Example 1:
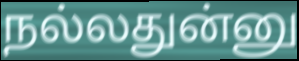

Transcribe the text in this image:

நல்லதுன்னு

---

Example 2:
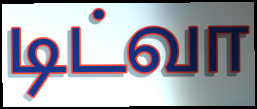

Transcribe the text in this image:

டிட்வா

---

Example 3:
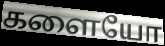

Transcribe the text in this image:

களையோ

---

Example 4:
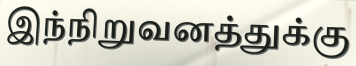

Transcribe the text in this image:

இந்நிறுவனத்துக்கு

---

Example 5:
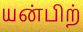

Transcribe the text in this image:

யன்பிற்